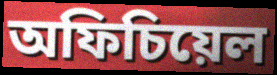
অফিচিয়েল